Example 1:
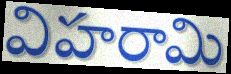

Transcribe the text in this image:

విహరామి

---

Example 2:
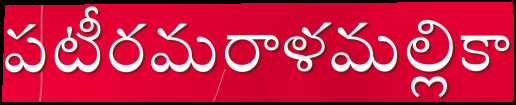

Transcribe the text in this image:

పటీరమరాళమల్లికా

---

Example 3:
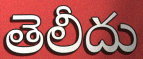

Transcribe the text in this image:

తెలీదు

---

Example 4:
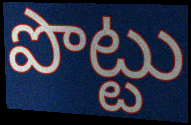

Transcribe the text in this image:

పొట్టు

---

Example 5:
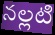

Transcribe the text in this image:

నల్లటి